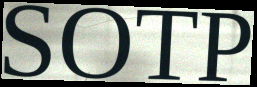
SOTP